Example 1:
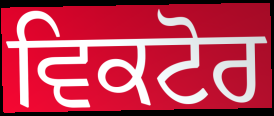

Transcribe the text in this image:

ਵਿਕਟੋਰ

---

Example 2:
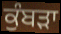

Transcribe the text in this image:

ਕੁੰਬੜਾ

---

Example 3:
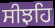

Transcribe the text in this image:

ਸੀਝਹਿ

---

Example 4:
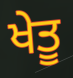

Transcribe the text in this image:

ਖੇਤੂ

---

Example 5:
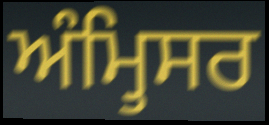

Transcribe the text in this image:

ਅੰਮ੍ਤਿਸਰ